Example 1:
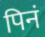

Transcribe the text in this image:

पिनं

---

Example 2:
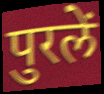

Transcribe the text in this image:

पुरलें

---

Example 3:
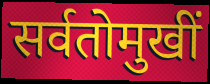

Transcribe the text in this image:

सर्वतोमुखीं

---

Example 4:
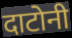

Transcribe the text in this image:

दाटोनी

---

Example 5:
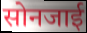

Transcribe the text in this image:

सोनजाई